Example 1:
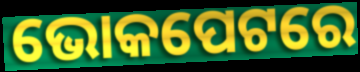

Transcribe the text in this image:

ଭୋକପେଟରେ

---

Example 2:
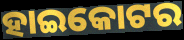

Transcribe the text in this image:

ହାଇକୋଟର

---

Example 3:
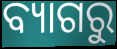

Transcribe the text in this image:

ବ୍ୟାଗରୁ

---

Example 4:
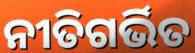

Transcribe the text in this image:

ନୀତିଗର୍ଭିତ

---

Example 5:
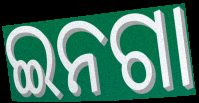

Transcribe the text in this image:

ଇନଗା